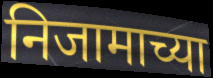
निजामाच्या